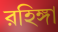
রহিঙ্গা